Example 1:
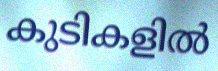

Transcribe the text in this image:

കുടികളിൽ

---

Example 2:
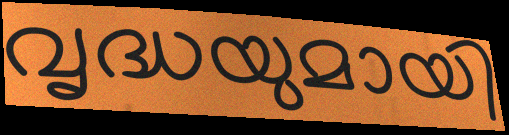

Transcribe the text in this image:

വൃദ്ധയുമായി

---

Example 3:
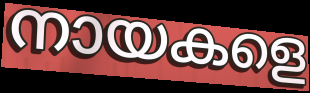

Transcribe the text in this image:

നായകളെ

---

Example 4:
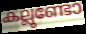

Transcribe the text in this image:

കല്ലുണ്ടോ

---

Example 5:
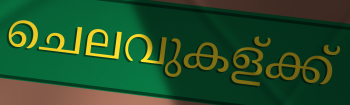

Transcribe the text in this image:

ചെലവുകള്ക്ക്